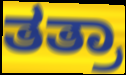
ತತ್ರಾ